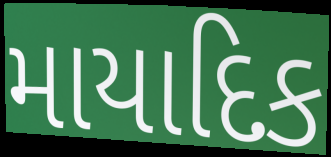
માયાદિક